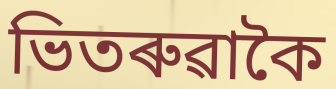
ভিতৰুৱাকৈ